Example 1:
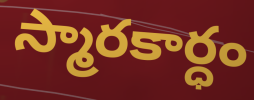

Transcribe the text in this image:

స్మారకార్ధం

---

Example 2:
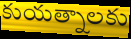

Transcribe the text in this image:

కుయత్నాలకు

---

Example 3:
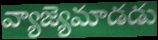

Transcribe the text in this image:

వ్యాజ్యెమాడడు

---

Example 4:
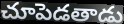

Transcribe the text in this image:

చూపెడతాడు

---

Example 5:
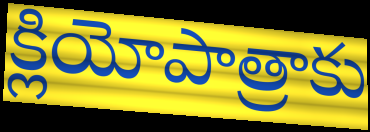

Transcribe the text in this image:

క్లియోపాత్రాకు